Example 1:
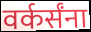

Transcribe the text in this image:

वर्कर्संना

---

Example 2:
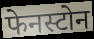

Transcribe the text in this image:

फेनस्टोन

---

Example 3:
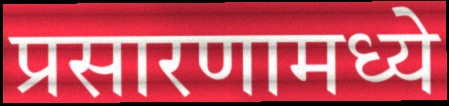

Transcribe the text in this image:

प्रसारणामध्ये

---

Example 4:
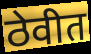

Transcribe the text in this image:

ठेवीत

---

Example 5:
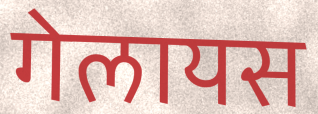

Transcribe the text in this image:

गेलायस